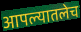
आपल्यातलेच